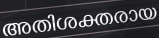
അതിശക്തരായ